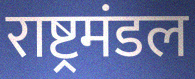
राष्ट्रमंडल